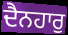
ਦੈਨਹਾਰੁ